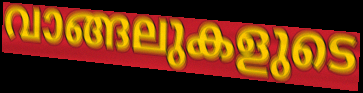
വാങ്ങലുകളുടെ